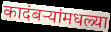
कादंबऱ्यांमधल्या